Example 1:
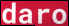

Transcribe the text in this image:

daro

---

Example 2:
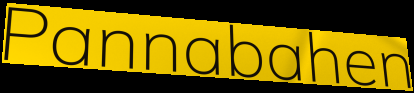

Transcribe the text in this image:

Pannabahen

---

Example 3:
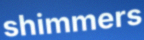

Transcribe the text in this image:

shimmers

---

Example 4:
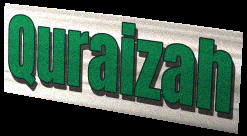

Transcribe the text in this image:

Quraizah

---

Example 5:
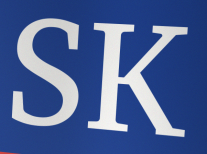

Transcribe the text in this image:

SK